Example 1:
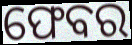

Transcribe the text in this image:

ଫେବର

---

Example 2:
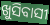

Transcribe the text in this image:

ଖୁସିବାସୀ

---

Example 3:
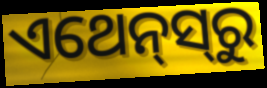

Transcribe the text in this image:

ଏଥେନ୍‌ସ୍‌ରୁ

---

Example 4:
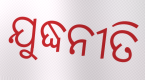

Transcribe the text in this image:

ଯୁଦ୍ଧନୀତି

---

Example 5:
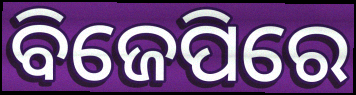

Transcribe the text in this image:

ବିଜେପିରେ